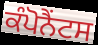
ਕੰਪੋਨੈਂਟਸ